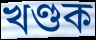
খণ্ডক